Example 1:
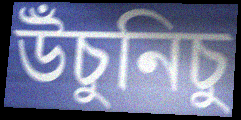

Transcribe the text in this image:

উঁচুনিচু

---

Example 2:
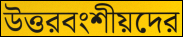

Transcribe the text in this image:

উত্তরবংশীয়দের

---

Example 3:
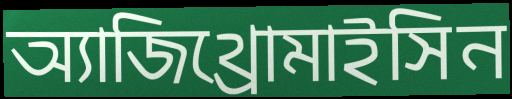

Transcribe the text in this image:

অ্যাজিথ্রোমাইসিন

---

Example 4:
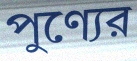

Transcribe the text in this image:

পুণ্যের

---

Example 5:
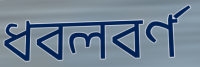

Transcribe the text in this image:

ধবলবর্ণ